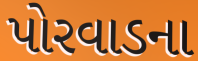
પોરવાડના